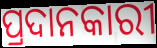
ପ୍ରଦାନକାରୀ